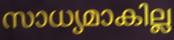
സാധ്യമാകില്ല